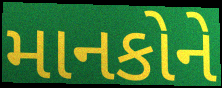
માનકોને